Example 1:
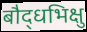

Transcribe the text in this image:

बौद्धभिक्षु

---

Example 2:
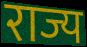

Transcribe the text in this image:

राज्‍य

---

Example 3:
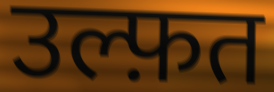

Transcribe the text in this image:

उल्फ़त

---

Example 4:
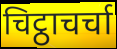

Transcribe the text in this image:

चिट्ठाचर्चा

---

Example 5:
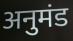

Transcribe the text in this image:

अनुमंड